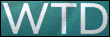
WTD